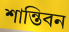
শান্তিবন